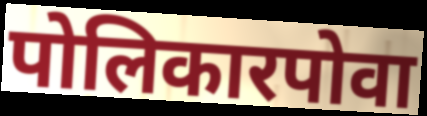
पोलिकारपोवा